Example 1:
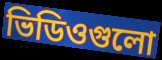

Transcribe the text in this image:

ভিডিওগুলো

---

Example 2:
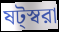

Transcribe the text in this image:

ষট্স্বরা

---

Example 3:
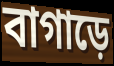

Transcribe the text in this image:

বাগাড়ে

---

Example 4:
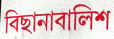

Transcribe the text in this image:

বিছানাবালিশ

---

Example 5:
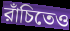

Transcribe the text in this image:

রাঁচিতেও